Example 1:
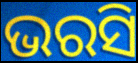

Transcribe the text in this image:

ଭରସି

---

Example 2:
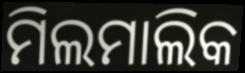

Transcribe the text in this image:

ମିଲମାଲିକ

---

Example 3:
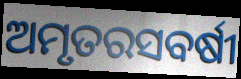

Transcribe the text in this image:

ଅମୃତରସବର୍ଷୀ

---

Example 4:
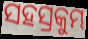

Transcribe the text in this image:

ସହସ୍ରକୁମ୍ଭ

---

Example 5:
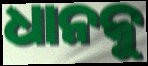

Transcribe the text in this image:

ଧାନକୁ